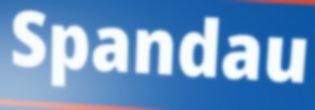
Spandau